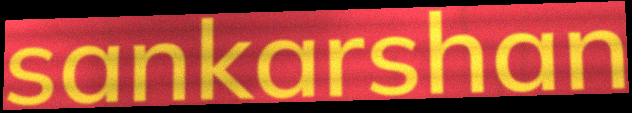
sankarshan